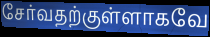
சேர்வதற்குள்ளாகவே